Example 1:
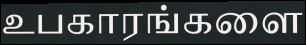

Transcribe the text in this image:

உபகாரங்களை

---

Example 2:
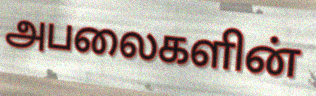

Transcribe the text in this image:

அபலைகளின்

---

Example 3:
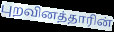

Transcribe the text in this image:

புறவினத்தாரின்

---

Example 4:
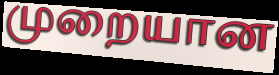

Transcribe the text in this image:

முறையான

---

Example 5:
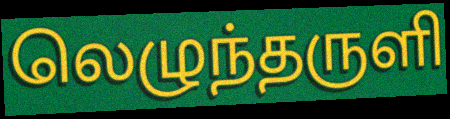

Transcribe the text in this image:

லெழுந்தருளி